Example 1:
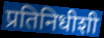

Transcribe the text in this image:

प्रतिनिधीशी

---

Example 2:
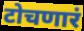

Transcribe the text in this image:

टोचणारं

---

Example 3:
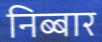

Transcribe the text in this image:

निब्बार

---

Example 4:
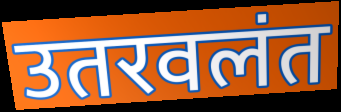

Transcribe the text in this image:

उतरवलंत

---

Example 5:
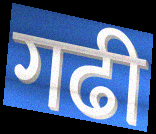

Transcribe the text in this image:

गढी